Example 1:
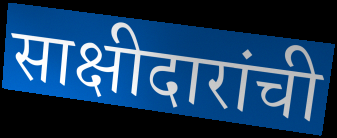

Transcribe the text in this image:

साक्षीदारांची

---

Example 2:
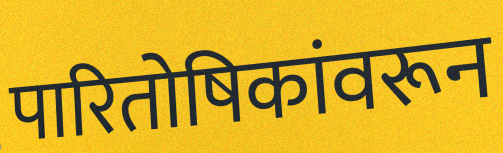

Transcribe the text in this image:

पारितोषिकांवरून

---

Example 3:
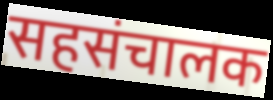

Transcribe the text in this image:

सहसंचालक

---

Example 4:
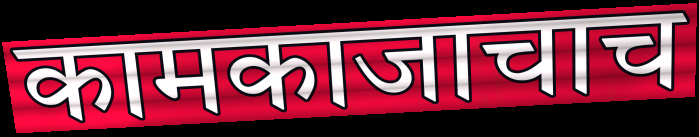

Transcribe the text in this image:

कामकाजाचाच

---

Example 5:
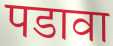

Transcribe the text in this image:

पडावा